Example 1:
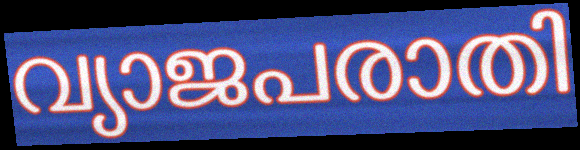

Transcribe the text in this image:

വ്യാജപരാതി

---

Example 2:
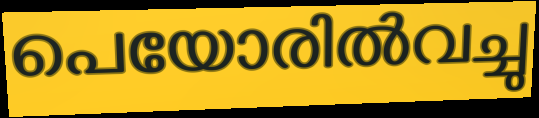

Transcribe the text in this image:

പെയോരിൽവച്ചു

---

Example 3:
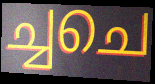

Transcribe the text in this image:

ച്ചചെ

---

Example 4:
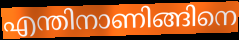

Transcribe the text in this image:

എന്തിനാണിങ്ങിനെ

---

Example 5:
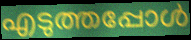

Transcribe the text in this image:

എടുത്തപ്പോൾ